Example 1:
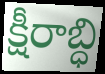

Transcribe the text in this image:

క్షీరాబ్ధి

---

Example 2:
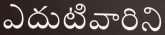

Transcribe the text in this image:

ఎదుటివారిని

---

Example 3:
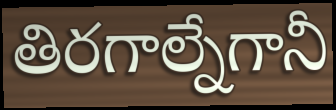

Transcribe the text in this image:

తిరగాల్నేగానీ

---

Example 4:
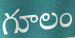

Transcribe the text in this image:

గూలం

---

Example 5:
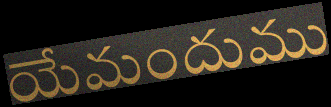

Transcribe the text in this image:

యేమందుము